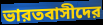
ভারতবাসীদের